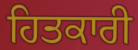
ਹਿਤਕਾਰੀ